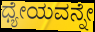
ಧ್ಯೇಯವನ್ನೇ